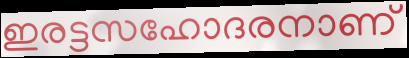
ഇരട്ടസഹോദരനാണ്